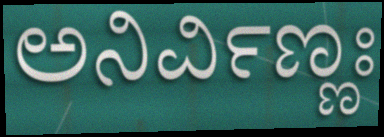
ಅನಿರ್ವಿಣ್ಣಃ